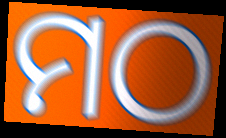
ମଠ